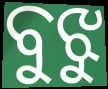
ବୁଝୁ